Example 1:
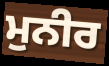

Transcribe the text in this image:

ਮੁਨੀਰ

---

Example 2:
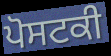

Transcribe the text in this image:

ਪੋਸਟਕੀ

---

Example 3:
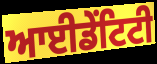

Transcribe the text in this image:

ਆਈਡੇਂਟਿਟੀ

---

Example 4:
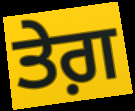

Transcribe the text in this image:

ਤੇਗ਼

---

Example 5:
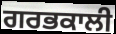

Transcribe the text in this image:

ਗਰਭਕਾਲੀ